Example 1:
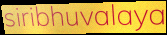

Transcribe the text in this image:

siribhuvalaya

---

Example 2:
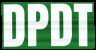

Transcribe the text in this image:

DPDT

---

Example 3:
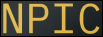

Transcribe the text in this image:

NPIC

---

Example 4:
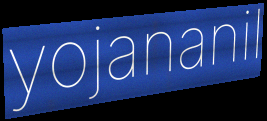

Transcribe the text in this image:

yojananil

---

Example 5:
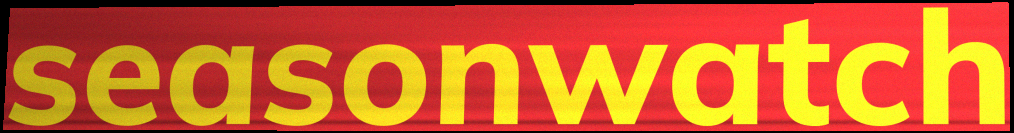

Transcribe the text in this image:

seasonwatch